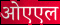
ओएएल